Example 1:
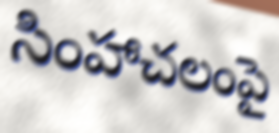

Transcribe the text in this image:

సింహాచలంపై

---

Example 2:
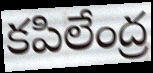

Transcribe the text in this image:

కపిలేంద్ర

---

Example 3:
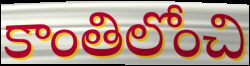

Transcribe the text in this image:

కాంతిలోంచి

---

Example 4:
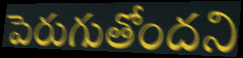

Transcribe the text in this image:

పెరుగుతోందని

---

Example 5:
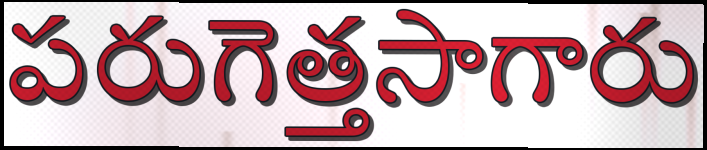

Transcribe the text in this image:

పరుగెత్తసాగారు